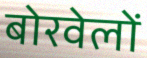
बोरवेलों